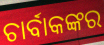
ଚାର୍ବାକଙ୍କର